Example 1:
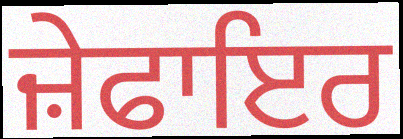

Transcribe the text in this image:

ਜ਼ੇਫਾਇਰ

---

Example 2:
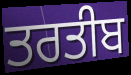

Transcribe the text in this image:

ਤਰਤੀਬ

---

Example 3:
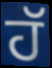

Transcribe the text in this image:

ਹੱ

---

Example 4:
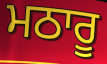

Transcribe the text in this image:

ਮਠਾਰੂ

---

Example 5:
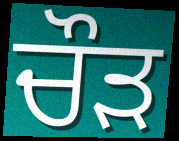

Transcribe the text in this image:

ਚੌੜ